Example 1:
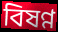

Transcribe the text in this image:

বিষণ্ন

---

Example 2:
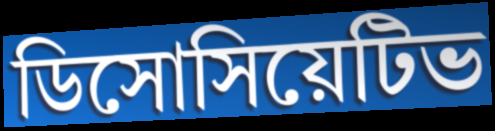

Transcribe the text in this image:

ডিসোসিয়েটিভ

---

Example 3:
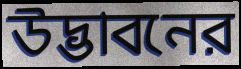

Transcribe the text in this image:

উদ্ভাবনের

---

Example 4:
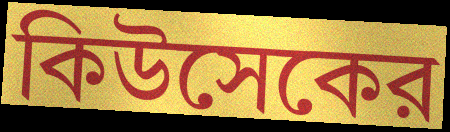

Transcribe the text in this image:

কিউসেকের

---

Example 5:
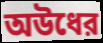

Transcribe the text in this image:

অউধের